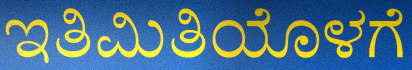
ಇತಿಮಿತಿಯೊಳಗೆ